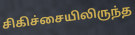
சிகிச்சையிலிருந்த